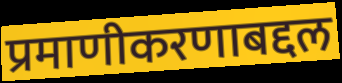
प्रमाणीकरणाबद्दल